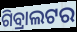
ଗିବ୍ରାଲଟର